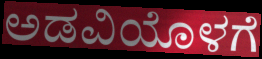
ಅಡವಿಯೊಳಗೆ